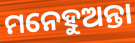
ମନେହୁଅନ୍ତା